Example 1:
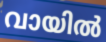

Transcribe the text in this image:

വായിൽ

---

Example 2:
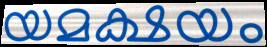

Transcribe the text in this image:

യമക്ഷയം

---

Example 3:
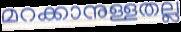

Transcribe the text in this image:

മറക്കാനുള്ളതല്ല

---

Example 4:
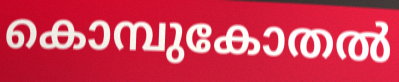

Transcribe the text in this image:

കൊമ്പുകോതൽ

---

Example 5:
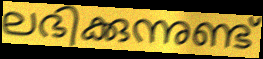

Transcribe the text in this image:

ലഭിക്കുന്നുണ്ട്